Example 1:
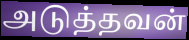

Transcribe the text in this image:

அடுத்தவன்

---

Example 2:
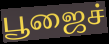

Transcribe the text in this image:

பூஜைச்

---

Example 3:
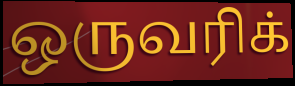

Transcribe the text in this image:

ஒருவரிக்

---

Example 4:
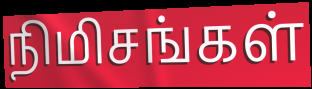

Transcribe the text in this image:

நிமிசங்கள்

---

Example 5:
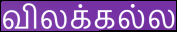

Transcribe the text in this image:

விலக்கல்ல